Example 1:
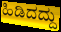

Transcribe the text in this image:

ಹಿಡಿದದ್ದು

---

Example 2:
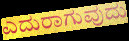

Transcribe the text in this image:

ಎದುರಾಗುವುದು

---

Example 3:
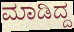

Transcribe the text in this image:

ಮಾಡಿದ್ದ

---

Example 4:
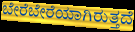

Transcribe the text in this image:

ಬೇರೆಬೇರೆಯಾಗಿರುತ್ತದೆ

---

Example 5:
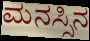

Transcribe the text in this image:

ಮನಸ್ಸಿನ